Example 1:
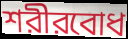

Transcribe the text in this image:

শরীরবোধ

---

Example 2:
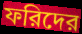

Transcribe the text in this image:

ফরিদের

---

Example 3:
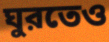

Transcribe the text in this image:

ঘুরতেও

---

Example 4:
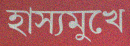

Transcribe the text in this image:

হাস্যমুখে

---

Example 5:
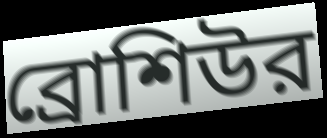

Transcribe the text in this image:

ব্রোশিউর